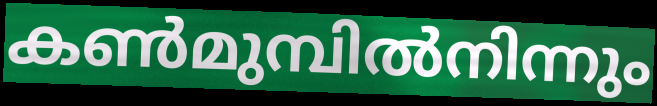
കൺമുമ്പിൽനിന്നും